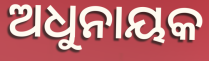
ଅଧୁନାୟକ